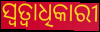
ସ୍ଵତ୍ୱାଧିକାରୀ